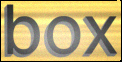
box